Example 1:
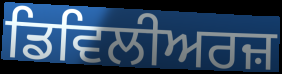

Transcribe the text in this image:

ਡਿਵਿਲੀਅਰਜ਼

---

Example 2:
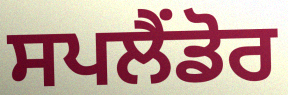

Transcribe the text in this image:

ਸਪਲੈਂਡੋਰ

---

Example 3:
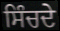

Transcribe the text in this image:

ਸਿੰਚਦੇ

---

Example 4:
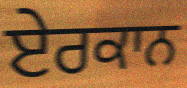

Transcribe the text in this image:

ਏਰਕਾਨ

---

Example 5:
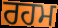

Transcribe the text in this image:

ਰਹਮ